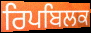
ਰਿਪਬਿਲਕ